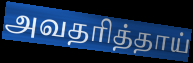
அவதரித்தாய்